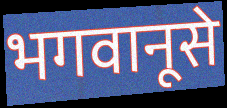
भगवानूसे